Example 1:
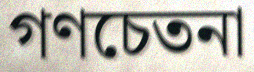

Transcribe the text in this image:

গণচেতনা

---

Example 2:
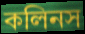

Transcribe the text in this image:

কলিনস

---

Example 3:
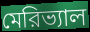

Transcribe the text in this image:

মেরিভ্যাল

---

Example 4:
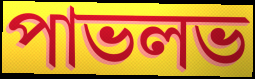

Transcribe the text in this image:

পাভলভ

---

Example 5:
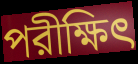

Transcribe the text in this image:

পরীক্ষিৎ